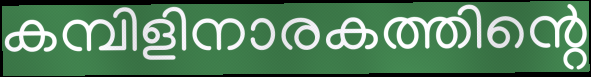
കമ്പിളിനാരകത്തിന്റെ